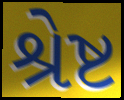
શ્રેષ્ટ